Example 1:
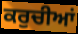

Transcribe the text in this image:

ਕਰੁਚੀਆਂ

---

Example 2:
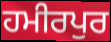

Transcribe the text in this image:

ਹਮੀਰਪੁਰ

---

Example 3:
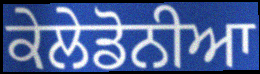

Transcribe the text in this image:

ਕੇਲੇਡੋਨੀਆ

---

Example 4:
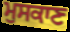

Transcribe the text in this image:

ਮੁਸਕਾਣ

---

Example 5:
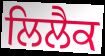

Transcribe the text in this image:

ਲਿਲੈਕ